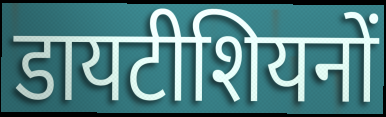
डायटीशियनों